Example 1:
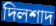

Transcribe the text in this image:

দিলশাদ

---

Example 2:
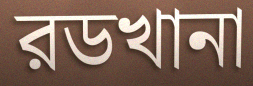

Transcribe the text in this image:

রডখানা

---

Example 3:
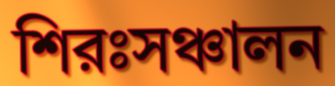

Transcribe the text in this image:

শিরঃসঞ্চালন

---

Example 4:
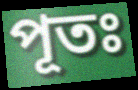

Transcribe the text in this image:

পূতঃ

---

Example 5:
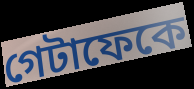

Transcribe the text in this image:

গেটাফেকে